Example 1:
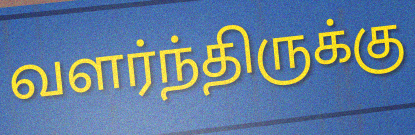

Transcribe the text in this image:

வளர்ந்திருக்கு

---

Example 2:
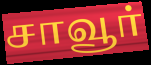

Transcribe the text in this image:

சாவூர்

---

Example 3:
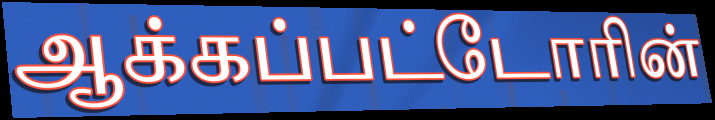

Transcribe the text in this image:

ஆக்கப்பட்டோரின்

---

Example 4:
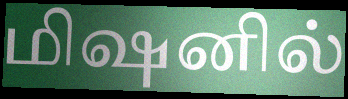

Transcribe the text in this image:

மிஷனில்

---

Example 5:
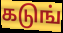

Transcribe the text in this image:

கடுங்